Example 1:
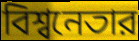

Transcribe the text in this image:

বিশ্বনেতার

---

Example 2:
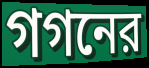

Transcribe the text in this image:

গগনের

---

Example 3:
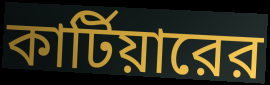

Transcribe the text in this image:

কার্টিয়ারের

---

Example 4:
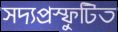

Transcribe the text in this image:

সদ্যপ্রস্ফুটিত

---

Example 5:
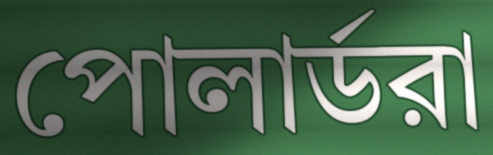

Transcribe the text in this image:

পোলার্ডরা